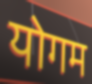
योगम